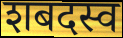
शबदस्व